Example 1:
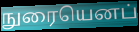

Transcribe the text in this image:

நுரையெனப்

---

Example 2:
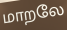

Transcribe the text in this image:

மாறலே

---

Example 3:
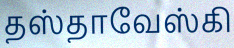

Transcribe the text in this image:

தஸ்தாவேஸ்கி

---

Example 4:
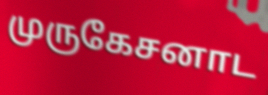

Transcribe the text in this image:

முருகேசனாட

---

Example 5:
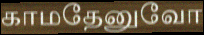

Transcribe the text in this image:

காமதேனுவோ